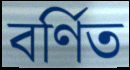
বর্ণিত